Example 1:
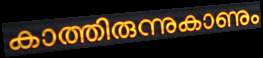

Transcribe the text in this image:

കാത്തിരുന്നുകാണും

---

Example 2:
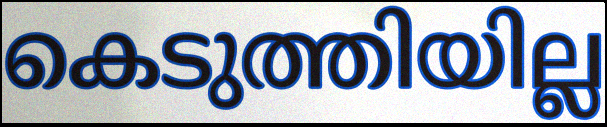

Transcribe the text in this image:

കെടുത്തിയില്ല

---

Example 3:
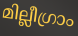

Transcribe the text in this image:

മില്ലീഗ്രാം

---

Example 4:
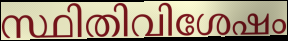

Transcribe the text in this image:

സ്ഥിതിവിശേഷം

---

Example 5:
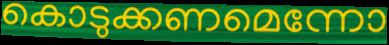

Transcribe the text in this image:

കൊടുക്കണമെന്നോ